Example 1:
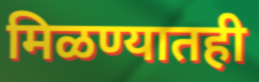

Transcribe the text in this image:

मिळण्यातही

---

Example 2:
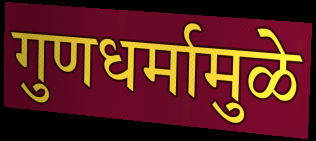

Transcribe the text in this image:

गुणधर्मामुळे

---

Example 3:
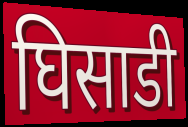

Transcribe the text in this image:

घिसाडी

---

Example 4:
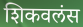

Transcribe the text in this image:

शिकवलंस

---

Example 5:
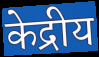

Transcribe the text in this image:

केद्रीय